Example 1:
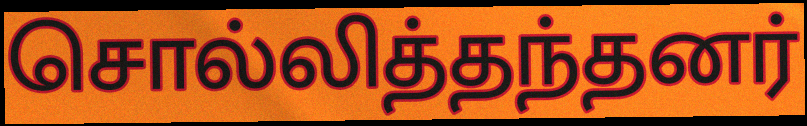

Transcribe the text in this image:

சொல்லித்தந்தனர்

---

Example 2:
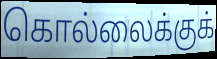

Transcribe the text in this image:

கொல்லைக்குக்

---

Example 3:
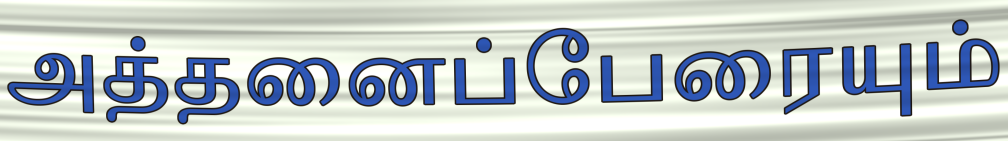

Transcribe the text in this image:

அத்தனைப்பேரையும்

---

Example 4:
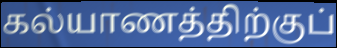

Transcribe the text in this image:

கல்யாணத்திற்குப்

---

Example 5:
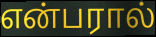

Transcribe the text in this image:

என்பரால்